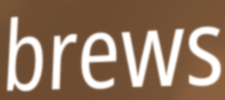
brews